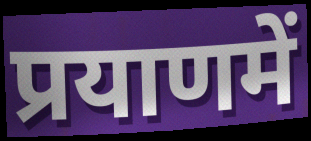
प्रयाणमें